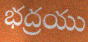
భద్రయు